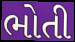
ભોતી